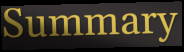
Summary